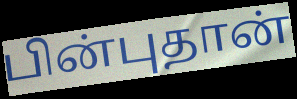
பின்புதான்